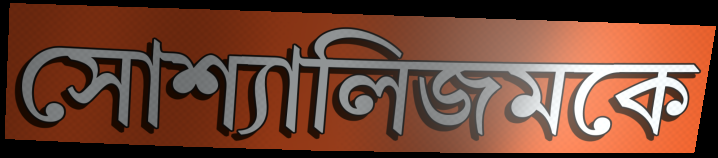
সোশ্যালিজমকে